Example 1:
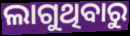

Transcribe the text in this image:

ଲାଗୁଥିବାରୁ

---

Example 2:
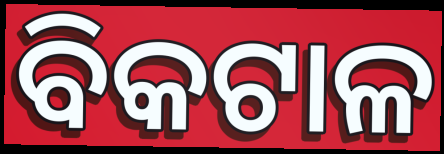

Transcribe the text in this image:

ବିକଟାଳ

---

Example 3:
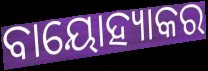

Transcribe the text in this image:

ବାୟୋହ୍ୟାକର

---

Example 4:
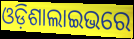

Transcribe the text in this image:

ଓଡ଼ିଶାଲାଇଭରେ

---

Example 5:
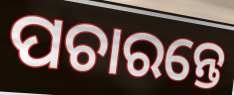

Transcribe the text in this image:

ପଚାରନ୍ତେ